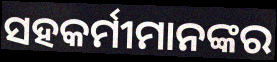
ସହକର୍ମୀମାନଙ୍କର